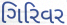
ગિરિવર